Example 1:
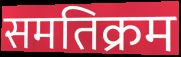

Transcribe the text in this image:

समतिक्रम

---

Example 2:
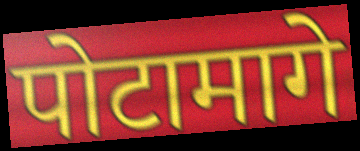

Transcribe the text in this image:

पोटामागे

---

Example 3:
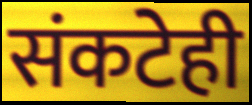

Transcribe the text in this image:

संकटेही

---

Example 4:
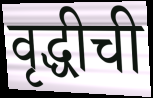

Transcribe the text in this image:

वृद्धीची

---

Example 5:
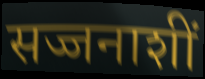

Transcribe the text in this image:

सज्जनाशीं